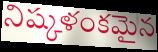
నిష్కళంకమైన